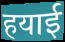
हयाई